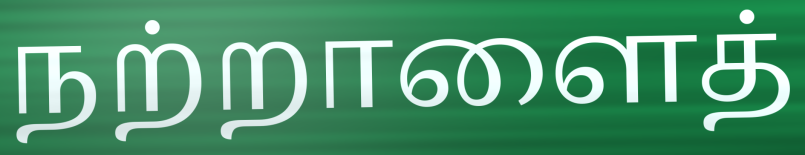
நற்றாளைத்